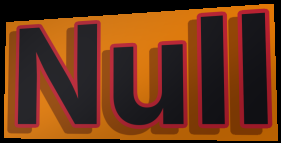
Null